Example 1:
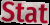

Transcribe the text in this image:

Stat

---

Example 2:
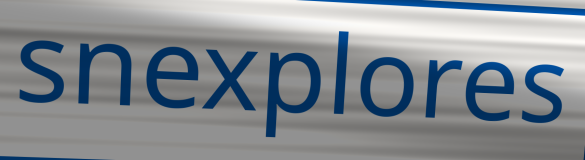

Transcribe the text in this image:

snexplores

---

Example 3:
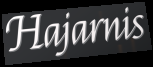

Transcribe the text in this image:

Hajarnis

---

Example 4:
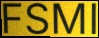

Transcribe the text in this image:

FSMI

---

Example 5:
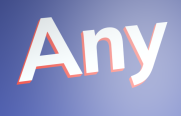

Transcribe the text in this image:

Any